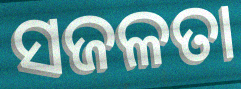
ସଜଳତା